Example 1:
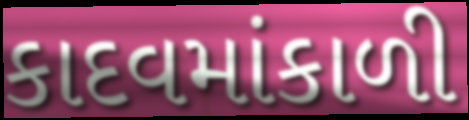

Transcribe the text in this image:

કાદવમાંકાળી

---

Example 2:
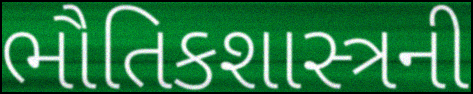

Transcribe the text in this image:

ભૌતિકશાસ્ત્રની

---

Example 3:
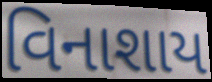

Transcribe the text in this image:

વિનાશાય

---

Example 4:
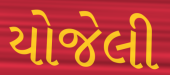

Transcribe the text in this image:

યોજેલી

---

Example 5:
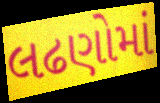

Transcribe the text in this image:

લઢણોમાં